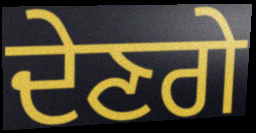
ਦੇਣਗੇ